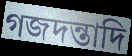
গজদন্তাদি